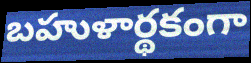
బహుళార్థకంగా